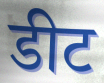
डीट